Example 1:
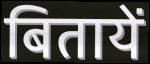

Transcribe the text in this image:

बितायें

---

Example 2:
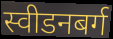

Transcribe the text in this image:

स्वीडनबर्ग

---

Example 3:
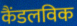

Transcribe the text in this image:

कैंडलविक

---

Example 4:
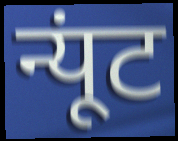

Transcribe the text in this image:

न्यूंट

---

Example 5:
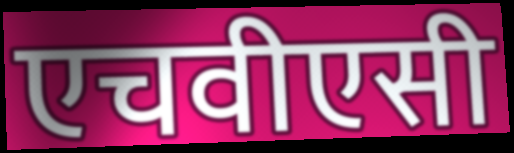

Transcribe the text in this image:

एचवीएसी